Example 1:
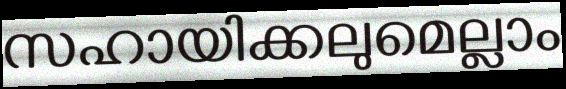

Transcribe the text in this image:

സഹായിക്കലുമെല്ലാം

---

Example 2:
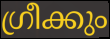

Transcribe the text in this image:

ഗ്രീക്കും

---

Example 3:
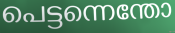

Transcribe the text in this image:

പെട്ടന്നെന്തോ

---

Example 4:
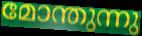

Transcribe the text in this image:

മോന്തുന്നു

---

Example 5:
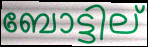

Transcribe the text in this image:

ബോട്ടില്